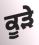
ਕੂੜੇ